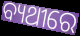
ବ୍ୟଥୀରେ